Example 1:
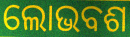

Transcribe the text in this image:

ଲୋଭବଶ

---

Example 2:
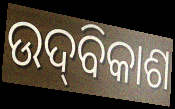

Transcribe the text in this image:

ଉଦ୍‌ବିକାଶ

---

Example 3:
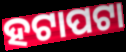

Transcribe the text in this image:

ହଟାପଟା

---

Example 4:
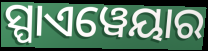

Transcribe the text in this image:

ସ୍ପାଏୱେୟାର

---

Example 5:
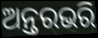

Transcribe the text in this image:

ଅନ୍ତରଭରି